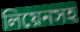
লিয়েনসহ